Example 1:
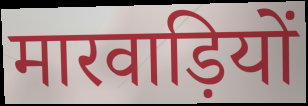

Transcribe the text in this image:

मारवाड़ियों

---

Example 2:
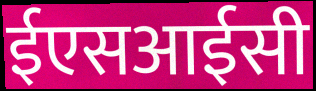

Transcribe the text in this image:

ईएसआईसी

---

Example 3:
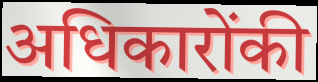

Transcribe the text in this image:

अधिकारोंकी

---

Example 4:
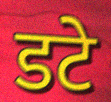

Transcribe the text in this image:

डटे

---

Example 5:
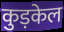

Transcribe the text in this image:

कुड़केल